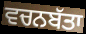
ਵਚਨਬੱਤਾ